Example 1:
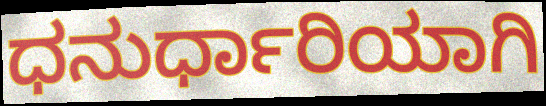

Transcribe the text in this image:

ಧನುರ್ಧಾರಿಯಾಗಿ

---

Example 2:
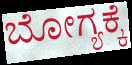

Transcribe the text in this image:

ಬೋಗ್ಯಕ್ಕೆ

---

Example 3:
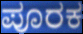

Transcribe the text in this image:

ಪೂರಕ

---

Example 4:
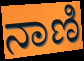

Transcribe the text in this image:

ನಾಣಿ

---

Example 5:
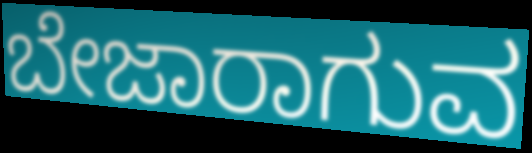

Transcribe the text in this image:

ಬೇಜಾರಾಗುವ